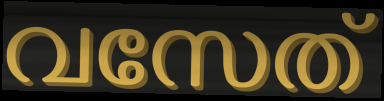
വസേത്